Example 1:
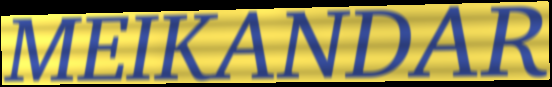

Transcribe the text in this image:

MEIKANDAR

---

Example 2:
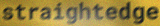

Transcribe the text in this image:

straightedge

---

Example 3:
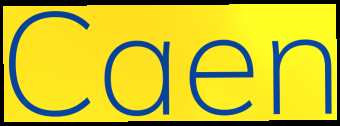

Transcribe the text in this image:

Caen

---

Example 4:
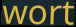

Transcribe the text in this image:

wort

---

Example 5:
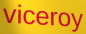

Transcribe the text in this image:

viceroy